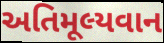
અતિમૂલ્યવાન